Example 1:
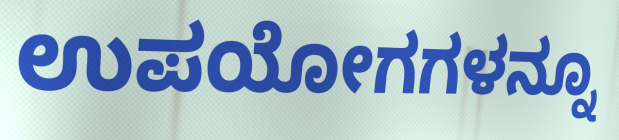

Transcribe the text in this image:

ಉಪಯೋಗಗಳನ್ನೂ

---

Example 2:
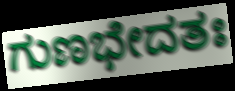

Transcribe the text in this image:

ಗುಣಭೇದತಃ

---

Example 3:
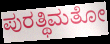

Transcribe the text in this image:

ಪುರತ್ಥಿಮತೋ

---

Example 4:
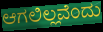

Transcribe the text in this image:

ಆಗಲಿಲ್ಲವೆಂದು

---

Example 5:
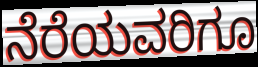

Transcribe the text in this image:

ನೆರೆಯವರಿಗೂ